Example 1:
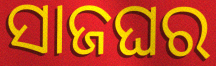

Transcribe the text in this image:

ସାଜଘର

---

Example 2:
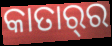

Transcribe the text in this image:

କାତାର୍‌ର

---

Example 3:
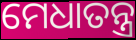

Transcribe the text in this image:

ମେଧାତନ୍ତ୍ର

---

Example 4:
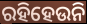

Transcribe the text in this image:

ରହିହେଉନି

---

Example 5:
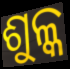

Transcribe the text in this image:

ଶୁଳ୍କ